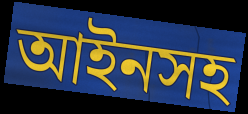
আইনসহ